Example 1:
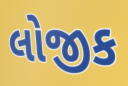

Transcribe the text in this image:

લોજીક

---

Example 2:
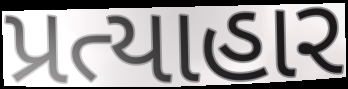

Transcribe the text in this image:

પ્રત્યાહાર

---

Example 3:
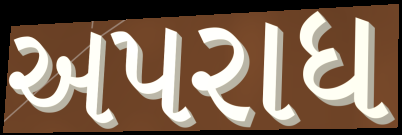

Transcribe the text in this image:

અપરાધ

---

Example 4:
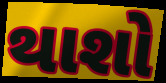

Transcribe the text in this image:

થાશો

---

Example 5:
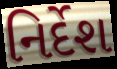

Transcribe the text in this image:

નિર્દેશ